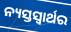
ନ୍ୟସ୍ତସ୍ୱାର୍ଥର